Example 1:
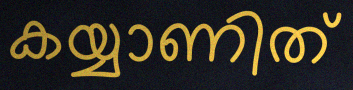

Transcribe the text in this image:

കയ്യാണിത്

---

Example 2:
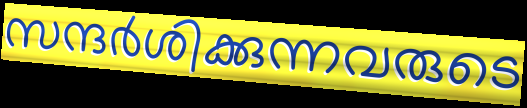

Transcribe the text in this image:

സന്ദർശിക്കുന്നവരുടെ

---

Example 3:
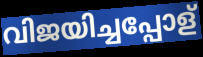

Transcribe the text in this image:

വിജയിച്ചപ്പോള്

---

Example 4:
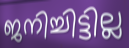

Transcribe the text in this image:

ജനിച്ചിട്ടില്ല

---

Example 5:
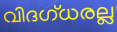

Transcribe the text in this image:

വിദഗ്ധരല്ല